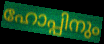
ഹോപ്പിനും